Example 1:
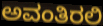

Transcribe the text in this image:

ಅವಂತಿರಲಿ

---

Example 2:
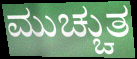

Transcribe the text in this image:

ಮುಚ್ಚುತ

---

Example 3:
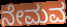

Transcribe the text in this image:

ನೇಮವ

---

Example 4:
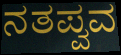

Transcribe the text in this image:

ನತಪ್ವವ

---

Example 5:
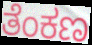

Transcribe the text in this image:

ತೆಂಕಣ